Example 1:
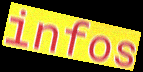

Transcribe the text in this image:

infos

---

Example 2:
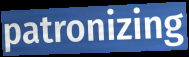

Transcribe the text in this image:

patronizing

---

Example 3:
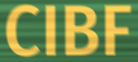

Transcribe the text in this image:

CIBF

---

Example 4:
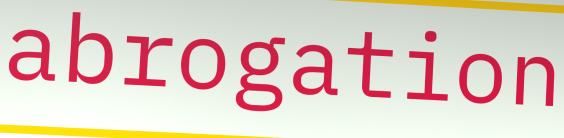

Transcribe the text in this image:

abrogation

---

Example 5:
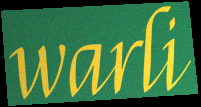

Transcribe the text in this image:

warli